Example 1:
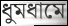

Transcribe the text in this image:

ধুমধামে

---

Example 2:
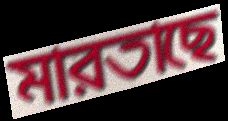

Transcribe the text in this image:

মারতাছে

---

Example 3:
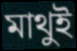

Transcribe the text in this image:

মাথুই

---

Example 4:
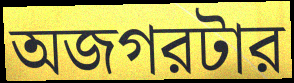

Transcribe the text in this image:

অজগরটার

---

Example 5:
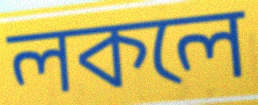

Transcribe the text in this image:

লকলে